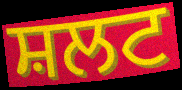
ਸ਼ਲਟ